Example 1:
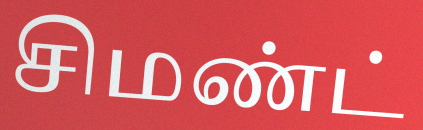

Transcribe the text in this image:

சிமண்ட்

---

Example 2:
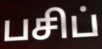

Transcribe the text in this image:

பசிப்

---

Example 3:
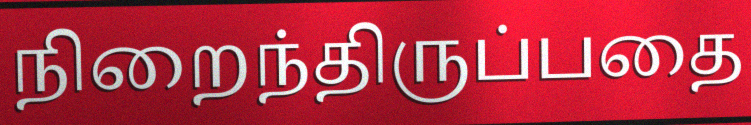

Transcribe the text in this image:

நிறைந்திருப்பதை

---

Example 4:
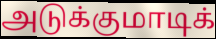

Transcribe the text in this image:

அடுக்குமாடிக்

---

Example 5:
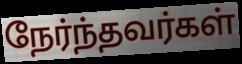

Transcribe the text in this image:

நேர்ந்தவர்கள்